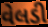
વેલડી